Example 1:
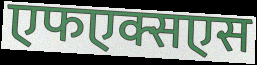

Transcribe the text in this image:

एफएक्सएस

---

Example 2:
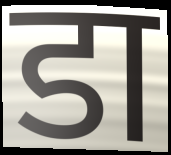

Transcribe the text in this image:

डा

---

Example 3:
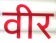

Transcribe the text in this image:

वीर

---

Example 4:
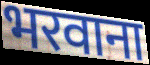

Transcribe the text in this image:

भरवाना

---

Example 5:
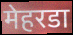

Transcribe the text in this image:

मेहरडा